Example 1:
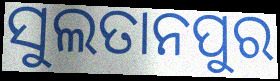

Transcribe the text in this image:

ସୁଲତାନପୁର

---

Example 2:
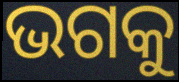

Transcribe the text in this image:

ଭଗକୁ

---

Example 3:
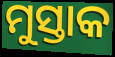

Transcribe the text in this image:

ମୁସ୍ତାକ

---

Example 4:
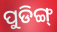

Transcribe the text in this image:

ପୁଡିଙ୍ଗ୍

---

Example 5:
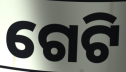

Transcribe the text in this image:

ଗେଟି